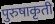
पुरुषाकृती